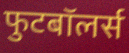
फुटबॉलर्स